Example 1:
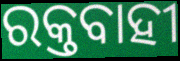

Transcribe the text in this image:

ରକ୍ତବାହୀ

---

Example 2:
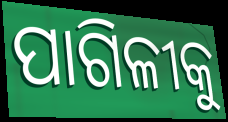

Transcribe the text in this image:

ପାଗିଳୀକୁ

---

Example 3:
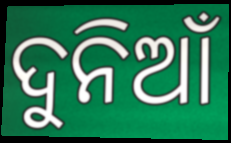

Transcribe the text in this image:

ଦୁନିଆଁ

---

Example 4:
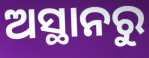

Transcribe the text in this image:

ଅସ୍ଥାନରୁ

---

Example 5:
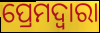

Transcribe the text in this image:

ପ୍ରେମଦ୍ୱାରା